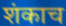
शंकाच